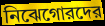
নিঝেগোরদের